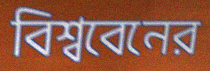
বিশ্ববেনের